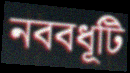
নববধূটি